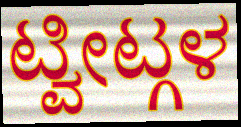
ಟ್ವೀಟ್ಗಳ